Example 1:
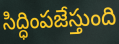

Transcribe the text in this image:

సిద్ధింపజేస్తుంది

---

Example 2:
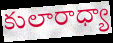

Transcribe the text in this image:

కులారాధ్యా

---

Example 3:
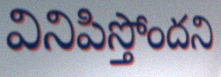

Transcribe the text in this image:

వినిపిస్తోందని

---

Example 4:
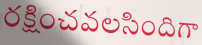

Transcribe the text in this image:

రక్షించవలసిందిగా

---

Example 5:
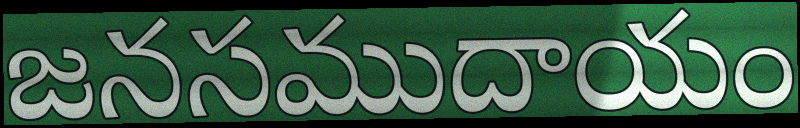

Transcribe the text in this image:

జనసముదాయం